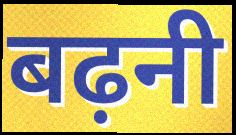
बढ़नी